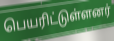
பெயரிட்டுள்ளனர்